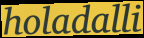
holadalli